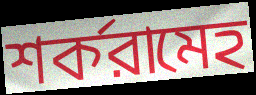
শর্করামেহ